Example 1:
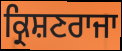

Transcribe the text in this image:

ਕ੍ਰਿਸ਼ਣਰਾਜਾ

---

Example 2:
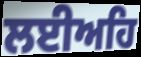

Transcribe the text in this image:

ਲਈਅਹਿ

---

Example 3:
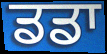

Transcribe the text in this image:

ਡਡਾ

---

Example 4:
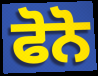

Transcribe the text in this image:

ਫੋਨੋ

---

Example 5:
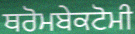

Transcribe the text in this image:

ਥਰੋਮਬੇਕਟੋਮੀ